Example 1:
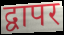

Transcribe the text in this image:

द्वापर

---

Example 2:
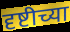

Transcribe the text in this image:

दृष्टीच्या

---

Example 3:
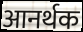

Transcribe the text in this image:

आनर्थक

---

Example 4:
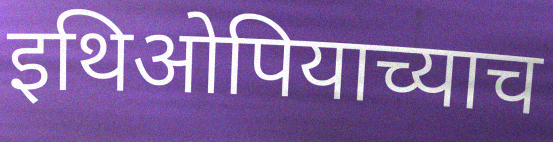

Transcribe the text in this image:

इथिओपियाच्याच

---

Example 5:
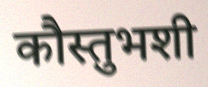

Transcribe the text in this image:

कौस्तुभशी